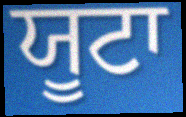
ਯੂਟਾ